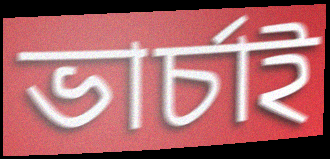
ভাৰ্চাই